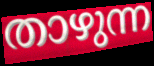
താഴുന്ന